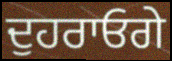
ਦੁਹਰਾਓਗੇ